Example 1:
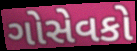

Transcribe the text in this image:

ગોસેવકો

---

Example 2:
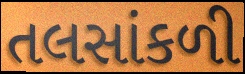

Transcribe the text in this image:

તલસાંકળી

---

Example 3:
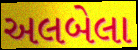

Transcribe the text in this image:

અલબેલા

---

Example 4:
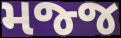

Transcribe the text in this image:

મજ્જ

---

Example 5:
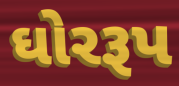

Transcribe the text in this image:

ઘોરરૂપ